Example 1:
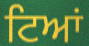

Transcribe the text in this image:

ਟਿਆਂ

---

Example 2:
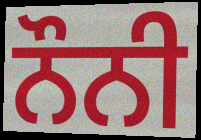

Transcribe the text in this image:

ਨੌਨੀ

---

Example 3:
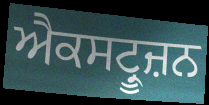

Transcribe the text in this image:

ਐਕਸਟ੍ਰੂਜ਼ਨ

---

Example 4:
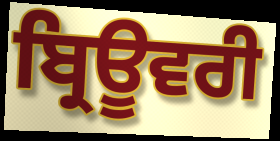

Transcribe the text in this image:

ਬ੍ਰਿਊਵਰੀ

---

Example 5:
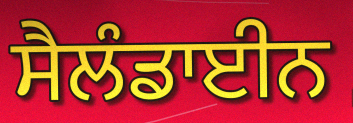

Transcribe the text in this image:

ਸੈਲੰਡਾਈਨ